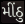
મીંઠુ